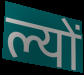
ल्यों